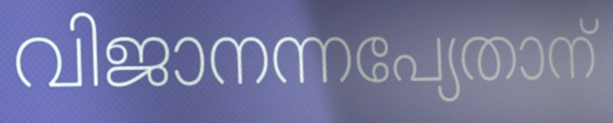
വിജാനന്നപ്യേതാന്